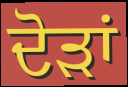
ਦੋੜਾਂ